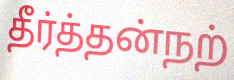
தீர்த்தன்நற்